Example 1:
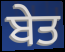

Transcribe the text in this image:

ਬੇਤ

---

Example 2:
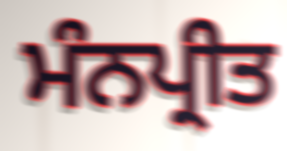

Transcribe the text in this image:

ਮੰਨਪ੍ਰੀਤ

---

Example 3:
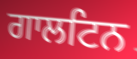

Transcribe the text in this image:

ਗਾਲਟਿਨ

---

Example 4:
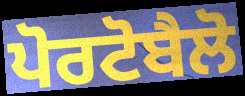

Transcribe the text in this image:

ਪੋਰਟੋਬੈਲੋ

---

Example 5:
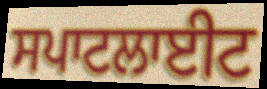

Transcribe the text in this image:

ਸਪਾਟਲਾਈਟ